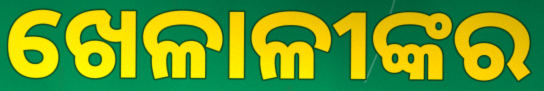
ଖେଳାଳୀଙ୍କର